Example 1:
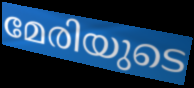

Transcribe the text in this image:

മേരിയുടെ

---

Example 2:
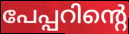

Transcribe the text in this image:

പേപ്പറിന്റെ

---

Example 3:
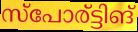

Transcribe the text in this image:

സ്പോര്ട്ടിങ്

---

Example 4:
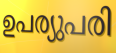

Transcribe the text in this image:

ഉപര്യുപരി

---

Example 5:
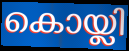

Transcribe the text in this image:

കൊയ്ലി